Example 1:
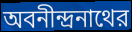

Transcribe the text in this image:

অবনীন্দ্রনাথের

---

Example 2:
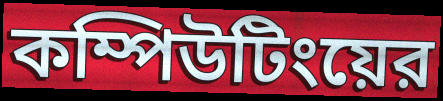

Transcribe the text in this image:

কম্পিউটিংয়ের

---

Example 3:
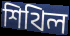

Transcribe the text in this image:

শিথিল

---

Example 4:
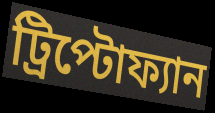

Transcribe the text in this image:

ট্রিপ্টোফ্যান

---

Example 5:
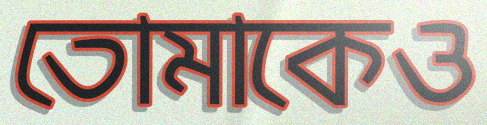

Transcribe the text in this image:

তোমাকেও